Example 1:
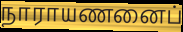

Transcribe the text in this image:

நாராயணனைப்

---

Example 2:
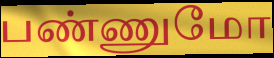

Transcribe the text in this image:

பண்ணுமோ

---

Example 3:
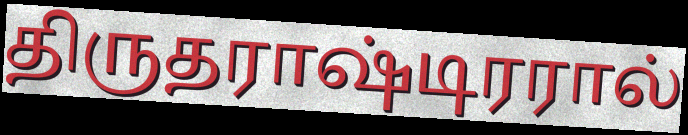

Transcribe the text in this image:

திருதராஷ்டிரரால்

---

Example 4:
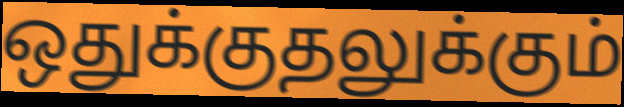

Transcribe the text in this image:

ஒதுக்குதலுக்கும்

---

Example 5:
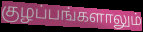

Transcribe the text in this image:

குழப்பங்களாலும்